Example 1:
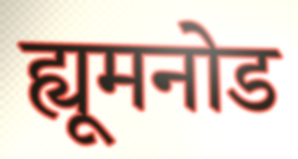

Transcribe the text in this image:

ह्यूमनोड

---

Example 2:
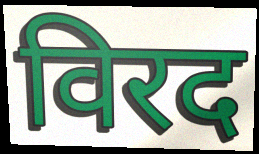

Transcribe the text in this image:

विरद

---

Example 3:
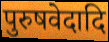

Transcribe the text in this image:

पुरुषवेदादि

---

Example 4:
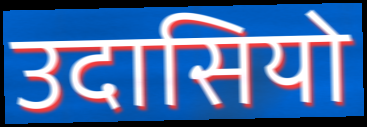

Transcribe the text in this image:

उदासियो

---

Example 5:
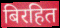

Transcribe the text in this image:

बिरहित